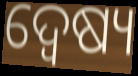
ଦ୍ୱେଷ୍ୟ